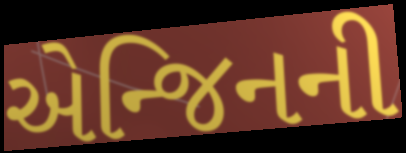
એન્જિનની